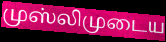
முஸ்லிமுடைய